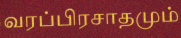
வரப்பிரசாதமும்